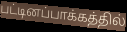
பட்டினப்பாக்கத்தில்